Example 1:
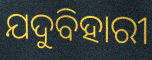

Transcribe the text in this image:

ଯଦୁବିହାରୀ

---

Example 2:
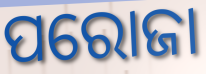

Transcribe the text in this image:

ପରୋଜା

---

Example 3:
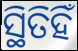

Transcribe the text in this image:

ସ୍ଥିତିହିଁ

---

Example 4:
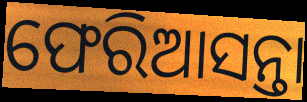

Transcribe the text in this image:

ଫେରିଆସନ୍ତା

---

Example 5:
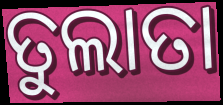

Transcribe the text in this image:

ତୁଲାତା